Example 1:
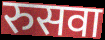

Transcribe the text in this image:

रुसवा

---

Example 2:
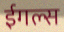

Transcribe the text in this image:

ईगल्स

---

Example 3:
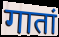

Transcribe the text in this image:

गातां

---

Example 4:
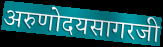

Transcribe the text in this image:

अरुणोदयसागरजी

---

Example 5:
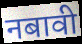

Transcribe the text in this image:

नबावी